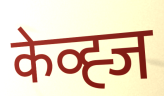
केव्ह्ज